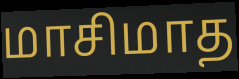
மாசிமாத